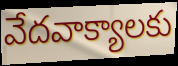
వేదవాక్యాలకు